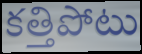
కత్తిపోటు